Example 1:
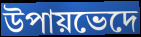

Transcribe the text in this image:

উপায়ভেদে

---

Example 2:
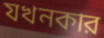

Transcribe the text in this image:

যখনকার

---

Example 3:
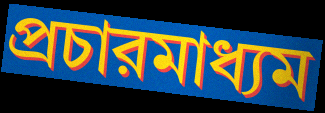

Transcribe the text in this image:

প্রচারমাধ্যম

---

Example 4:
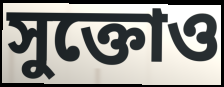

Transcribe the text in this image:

সুক্তোও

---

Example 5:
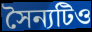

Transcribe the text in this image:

সৈন্যটিও